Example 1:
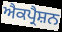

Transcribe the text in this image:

ਐਕਪ੍ਰੈਸ਼ਨ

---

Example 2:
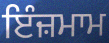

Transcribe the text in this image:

ਇੰਜ਼ਮਾਮ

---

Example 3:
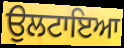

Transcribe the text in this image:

ਉਲਟਾਇਆ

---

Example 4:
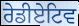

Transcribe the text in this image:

ਰੇਡੀਏਟਿਵ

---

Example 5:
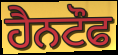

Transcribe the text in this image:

ਹੈਨਟੌਫ